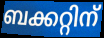
ബക്കറ്റിന്